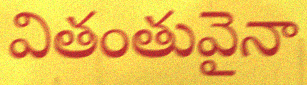
వితంతువైనా